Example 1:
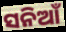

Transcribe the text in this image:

ସନିଆଁ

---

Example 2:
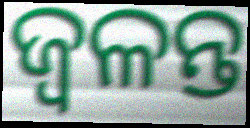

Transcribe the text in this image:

ଜ୍ଵଳନ୍ତ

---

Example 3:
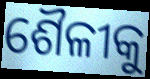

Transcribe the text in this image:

ଶୈଳୀକୁ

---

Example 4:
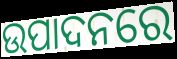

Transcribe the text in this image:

ଉପାଦନରେ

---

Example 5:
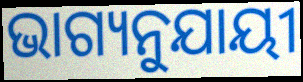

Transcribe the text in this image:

ଭାଗ୍ୟନୁଯାୟୀ